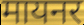
मायनर